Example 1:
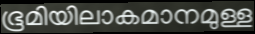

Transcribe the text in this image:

ഭൂമിയിലാകമാനമുള്ള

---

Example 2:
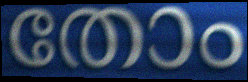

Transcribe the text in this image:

തോം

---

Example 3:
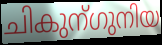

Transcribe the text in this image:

ചികുന്ഗുനിയ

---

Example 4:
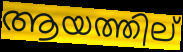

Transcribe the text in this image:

ആയത്തില്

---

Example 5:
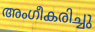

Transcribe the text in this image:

അംഗീകരിച്ചു